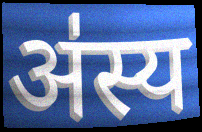
अ॑स्य